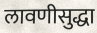
लावणीसुद्धा